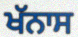
ਖੱਨਾਸ